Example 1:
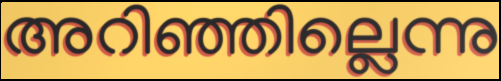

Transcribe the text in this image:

അറിഞ്ഞില്ലെന്നു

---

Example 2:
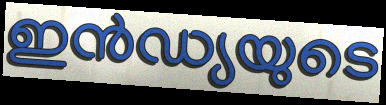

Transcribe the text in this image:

ഇൻഡ്യയുടെ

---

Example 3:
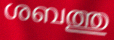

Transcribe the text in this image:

ശബത്തു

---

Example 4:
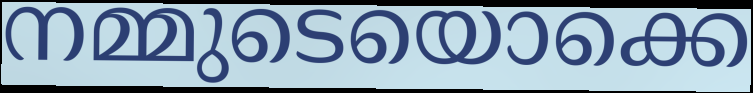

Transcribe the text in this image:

നമ്മുടെയൊക്കെ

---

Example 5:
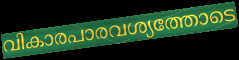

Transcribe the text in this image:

വികാരപാരവശ്യത്തോടെ